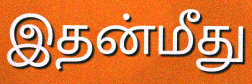
இதன்மீது